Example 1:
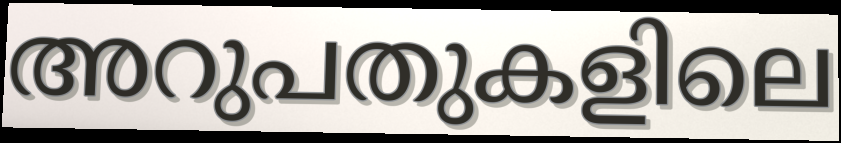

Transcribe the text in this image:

അറുപതുകളിലെ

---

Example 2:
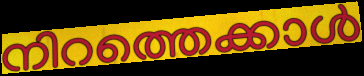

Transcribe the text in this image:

നിറത്തെക്കാൾ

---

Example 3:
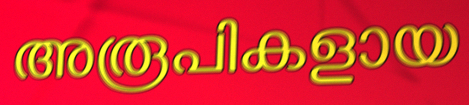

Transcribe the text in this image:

അരൂപികളായ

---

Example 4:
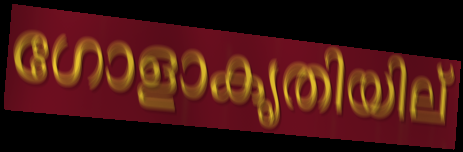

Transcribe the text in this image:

ഗോളാകൃതിയില്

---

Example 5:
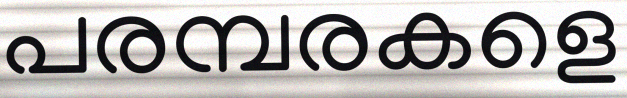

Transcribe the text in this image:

പരമ്പരകളെ